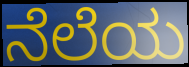
ನೆಲೆಯ